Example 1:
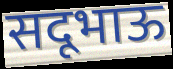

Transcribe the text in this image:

सदूभाऊ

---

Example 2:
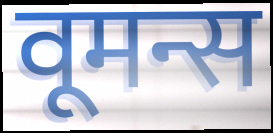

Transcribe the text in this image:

वूमन्स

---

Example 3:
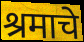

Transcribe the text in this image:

श्रमाचे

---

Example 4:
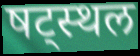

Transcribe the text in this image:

षट्स्थल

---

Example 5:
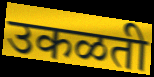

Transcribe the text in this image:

उकळती